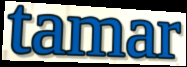
tamar